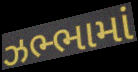
ઝભ્ભામાં